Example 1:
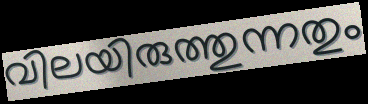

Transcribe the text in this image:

വിലയിരുത്തുന്നതും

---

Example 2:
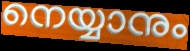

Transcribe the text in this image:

നെയ്യാനും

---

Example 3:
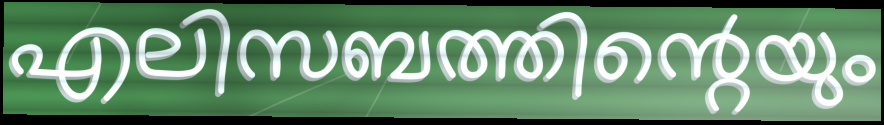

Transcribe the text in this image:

എലിസബത്തിന്റെയും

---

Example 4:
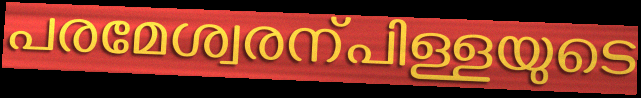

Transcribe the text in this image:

പരമേശ്വരന്പിള്ളയുടെ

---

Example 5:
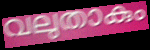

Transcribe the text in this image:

വലുതാകും